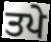
ਤਪੇ